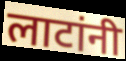
लाटांनी